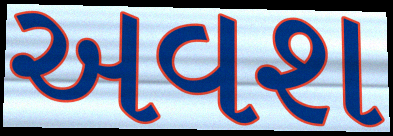
અવશ